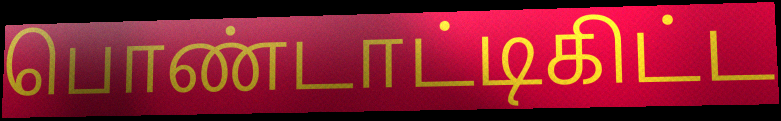
பொண்டாட்டிகிட்ட